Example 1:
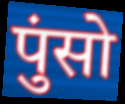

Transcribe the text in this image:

पुंसो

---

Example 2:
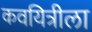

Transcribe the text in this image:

कवयित्रीला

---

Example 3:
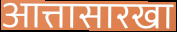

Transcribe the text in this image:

आत्तासारखा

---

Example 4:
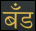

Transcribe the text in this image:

बॅंड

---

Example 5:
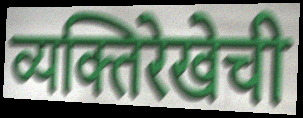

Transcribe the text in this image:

व्यक्तिरेखेची